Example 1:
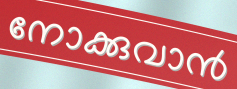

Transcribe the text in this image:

നോക്കുവാൻ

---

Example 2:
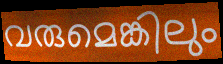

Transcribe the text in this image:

വരുമെങ്കിലും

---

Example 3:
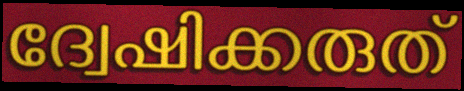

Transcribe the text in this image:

ദ്വേഷിക്കരുത്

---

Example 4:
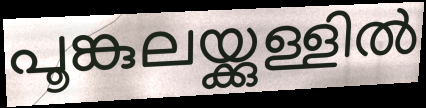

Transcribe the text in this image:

പൂങ്കുലയ്ക്കുള്ളിൽ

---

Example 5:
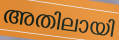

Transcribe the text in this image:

അതിലായി